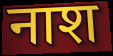
नाश